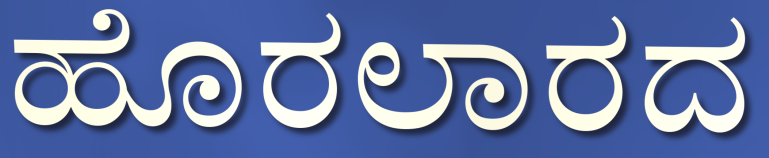
ಹೊರಲಾರದ